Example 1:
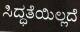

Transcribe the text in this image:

ಸಿದ್ಧತೆಯಿಲ್ಲದೆ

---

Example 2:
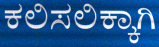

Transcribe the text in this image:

ಕಲಿಸಲಿಕ್ಕಾಗಿ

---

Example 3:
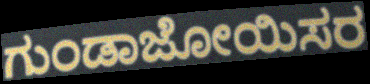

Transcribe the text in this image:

ಗುಂಡಾಜೋಯಿಸರ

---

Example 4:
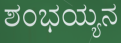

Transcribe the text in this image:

ಶಂಭಯ್ಯನ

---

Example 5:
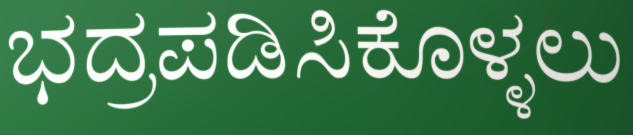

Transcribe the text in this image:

ಭದ್ರಪಡಿಸಿಕೊಳ್ಳಲು